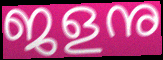
ജളനു